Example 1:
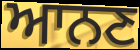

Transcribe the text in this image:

ਆਨਣ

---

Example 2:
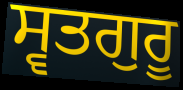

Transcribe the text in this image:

ਸ੍ਵਤਗੁਰੂ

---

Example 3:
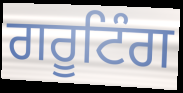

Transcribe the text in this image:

ਗਰੂਟਿੰਗ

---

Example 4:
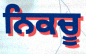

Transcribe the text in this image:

ਨਿਕਚੂ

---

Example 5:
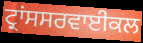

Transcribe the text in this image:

ਟ੍ਰਾਂਸਸਰਵਾਈਕਲ